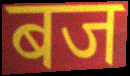
बज